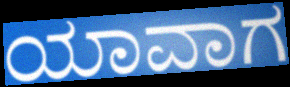
ಯಾವಾಗ